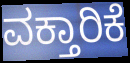
ವಕ್ತಾರಿಕೆ